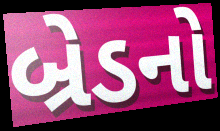
બ્રેડનો